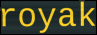
royak